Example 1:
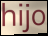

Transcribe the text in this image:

hijo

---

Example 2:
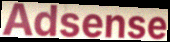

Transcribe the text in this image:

Adsense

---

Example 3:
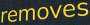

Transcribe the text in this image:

removes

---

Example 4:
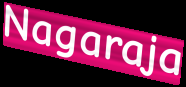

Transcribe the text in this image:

Nagaraja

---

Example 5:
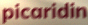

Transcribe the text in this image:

picaridin